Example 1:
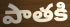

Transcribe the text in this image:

పాతకి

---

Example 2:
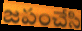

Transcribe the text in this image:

జపంచేసి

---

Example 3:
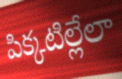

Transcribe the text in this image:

పిక్కటిల్లేలా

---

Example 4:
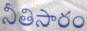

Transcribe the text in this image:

నీతిసారం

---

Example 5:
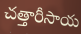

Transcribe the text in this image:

చత్తారీసాయ